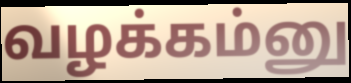
வழக்கம்னு